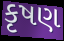
કૃષણ